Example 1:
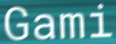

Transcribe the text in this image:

Gami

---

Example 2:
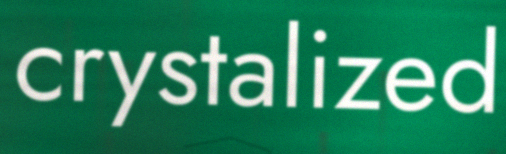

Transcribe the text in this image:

crystalized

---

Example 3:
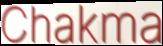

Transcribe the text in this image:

Chakma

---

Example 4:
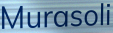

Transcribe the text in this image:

Murasoli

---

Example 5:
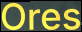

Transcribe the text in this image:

Ores